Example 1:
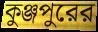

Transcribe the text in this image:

কুঞ্জপুরের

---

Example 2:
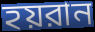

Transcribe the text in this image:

হয়রান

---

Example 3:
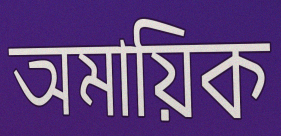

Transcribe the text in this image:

অমায়িক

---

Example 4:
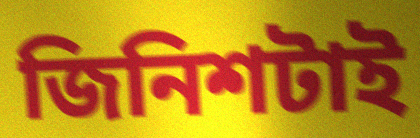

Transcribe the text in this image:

জিনিশটাই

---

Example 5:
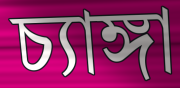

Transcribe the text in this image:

চ্যাঙ্গা